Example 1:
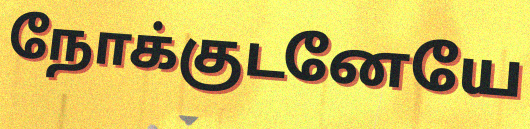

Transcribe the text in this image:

நோக்குடனேயே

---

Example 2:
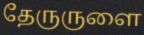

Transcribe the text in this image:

தேருருளை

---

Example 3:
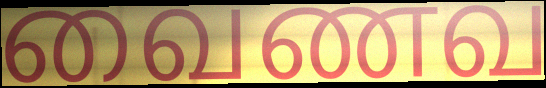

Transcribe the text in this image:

வைணவ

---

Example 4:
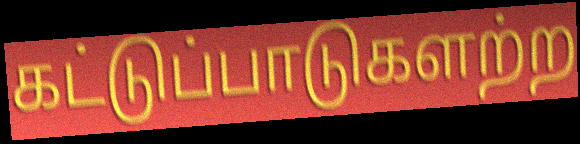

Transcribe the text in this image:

கட்டுப்பாடுகளற்ற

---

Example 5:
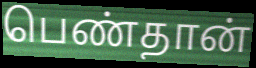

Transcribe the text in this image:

பெண்தான்